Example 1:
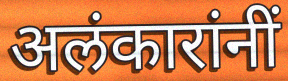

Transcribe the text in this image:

अलंकारांनीं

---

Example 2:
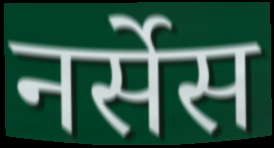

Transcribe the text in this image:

नर्सेस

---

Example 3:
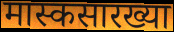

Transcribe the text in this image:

मास्कसारख्या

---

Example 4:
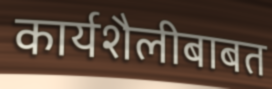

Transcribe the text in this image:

कार्यशैलीबाबत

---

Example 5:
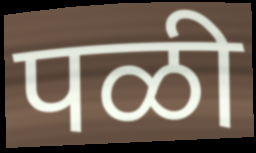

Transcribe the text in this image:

पळी